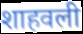
शाहवली